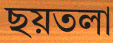
ছয়তলা